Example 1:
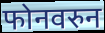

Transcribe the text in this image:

फोनवरुन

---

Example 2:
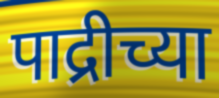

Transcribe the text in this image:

पाद्रीच्या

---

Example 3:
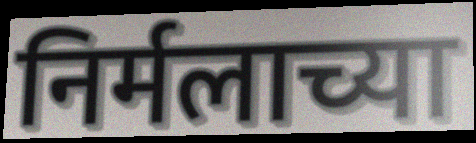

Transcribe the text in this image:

निर्मलाच्या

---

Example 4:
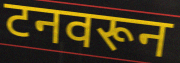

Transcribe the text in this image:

टनवरून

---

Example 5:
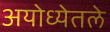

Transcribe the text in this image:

अयोध्येतले